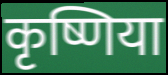
कृष्णिया